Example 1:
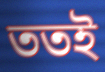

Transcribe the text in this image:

ততই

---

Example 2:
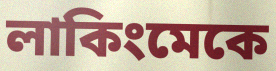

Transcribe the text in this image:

লাকিংমেকে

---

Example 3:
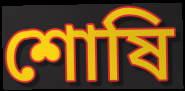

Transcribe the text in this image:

শোষি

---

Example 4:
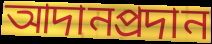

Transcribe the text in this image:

আদানপ্রদান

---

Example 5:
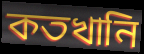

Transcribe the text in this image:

কতখানি